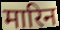
मारिन